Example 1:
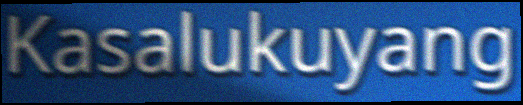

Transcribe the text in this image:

Kasalukuyang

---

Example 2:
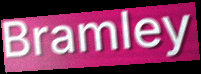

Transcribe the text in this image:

Bramley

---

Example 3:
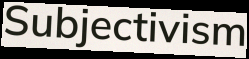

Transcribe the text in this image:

Subjectivism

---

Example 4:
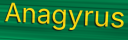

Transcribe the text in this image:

Anagyrus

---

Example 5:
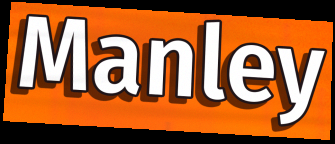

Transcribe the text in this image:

Manley